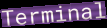
Terminal